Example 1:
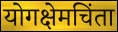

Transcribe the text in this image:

योगक्षेमचिंता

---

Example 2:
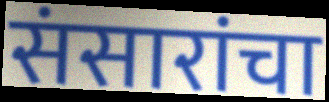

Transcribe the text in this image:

संसारांचा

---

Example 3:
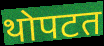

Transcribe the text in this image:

थोपटत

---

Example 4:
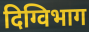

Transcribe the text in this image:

दिग्विभाग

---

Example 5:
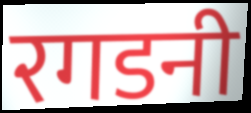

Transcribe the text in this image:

रगडनी